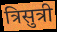
त्रिसुत्री